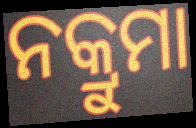
ନକ୍ରୁମା